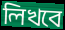
লিখবে